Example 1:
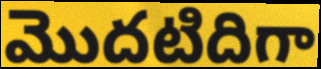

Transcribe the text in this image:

మొదటిదిగా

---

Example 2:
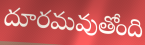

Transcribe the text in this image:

దూరమవుతోంది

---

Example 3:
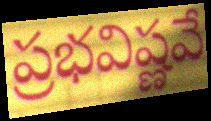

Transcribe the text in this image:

ప్రభవిష్ణవే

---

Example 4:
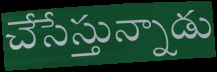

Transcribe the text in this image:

చేసేస్తున్నాడు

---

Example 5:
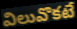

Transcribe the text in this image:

విలువొకటే